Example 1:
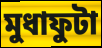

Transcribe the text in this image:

মুধাফুটা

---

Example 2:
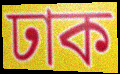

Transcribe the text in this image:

ঢাক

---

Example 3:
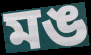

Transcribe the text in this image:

মঙ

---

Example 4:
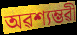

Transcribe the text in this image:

অৱশ্যম্ভৱী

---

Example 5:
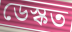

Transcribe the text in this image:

ডেস্কত